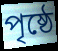
পৃষ্ঠে